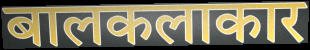
बालकलाकार